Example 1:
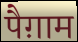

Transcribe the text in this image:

पैग़ाम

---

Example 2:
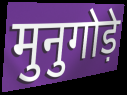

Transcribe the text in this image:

मुनुगोड़े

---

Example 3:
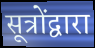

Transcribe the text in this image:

सूत्रोंद्वारा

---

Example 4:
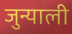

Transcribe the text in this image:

जुन्याली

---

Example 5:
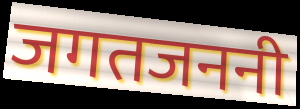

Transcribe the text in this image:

जगतजननी